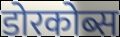
डोरकोब्स